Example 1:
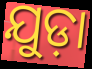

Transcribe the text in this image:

ଯୁଡ଼ା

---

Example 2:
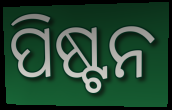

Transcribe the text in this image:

ପିଷ୍ଟନ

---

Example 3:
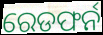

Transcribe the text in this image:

ରେଡଫର୍ନ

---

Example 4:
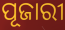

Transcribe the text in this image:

ପୂଜାରୀ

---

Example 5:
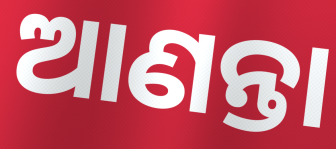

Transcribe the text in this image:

ଆଣନ୍ତା